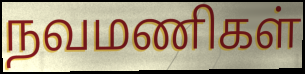
நவமணிகள்